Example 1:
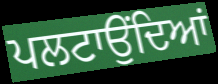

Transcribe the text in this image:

ਪਲਟਾਉਂਦਿਆਂ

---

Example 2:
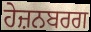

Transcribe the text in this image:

ਹੇਜ਼ਨਬਰਗ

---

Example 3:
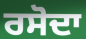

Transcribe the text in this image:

ਰਸੋਦਾ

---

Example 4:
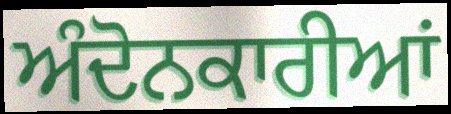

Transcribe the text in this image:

ਅੰਦੋਨਕਾਰੀਆਂ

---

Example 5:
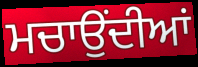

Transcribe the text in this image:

ਮਚਾਉਂਦੀਆਂ